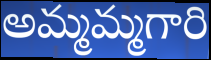
అమ్మమ్మగారి